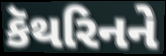
કૅથરિનને